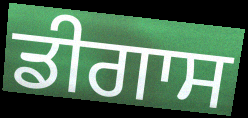
ਡੀਗਾਸ